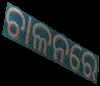
ଚାଳନରେ